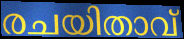
രചയിതാവ്